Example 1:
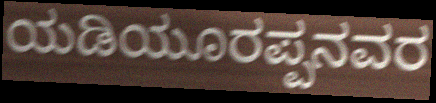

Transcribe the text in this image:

ಯಡಿಯೂರಪ್ಪನವರ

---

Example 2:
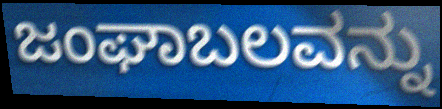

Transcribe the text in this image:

ಜಂಘಾಬಲವನ್ನು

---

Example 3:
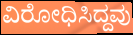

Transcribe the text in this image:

ವಿರೋಧಿಸಿದ್ದವು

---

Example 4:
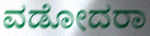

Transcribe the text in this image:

ವಡೋದರಾ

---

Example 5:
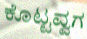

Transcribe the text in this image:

ಕೊಟ್ಟವ್ವಗ